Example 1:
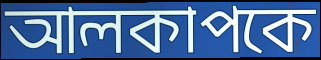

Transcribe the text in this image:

আলকাপকে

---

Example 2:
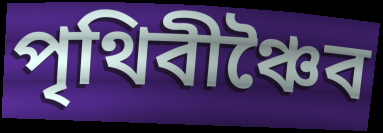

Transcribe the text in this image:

পৃথিবীঞ্চৈব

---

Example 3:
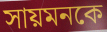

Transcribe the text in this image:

সায়মনকে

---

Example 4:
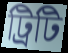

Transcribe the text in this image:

ট্রিটি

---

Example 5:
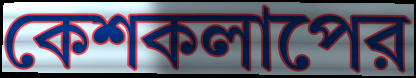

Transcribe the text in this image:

কেশকলাপের